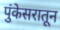
पुंकेसरातून